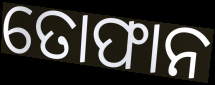
ତୋଫାନ